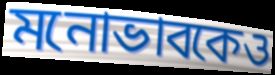
মনোভাবকেও